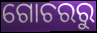
ଗୋଚରରୁ